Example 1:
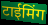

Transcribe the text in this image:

टाईमिंग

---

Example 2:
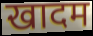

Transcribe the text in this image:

खादम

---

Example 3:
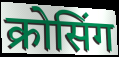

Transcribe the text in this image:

क्रोसिंग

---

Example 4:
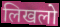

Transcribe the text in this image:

लिखलो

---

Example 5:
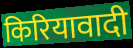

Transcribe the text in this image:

किरियावादी